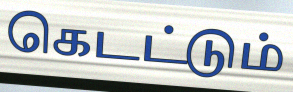
கெடட்டும்